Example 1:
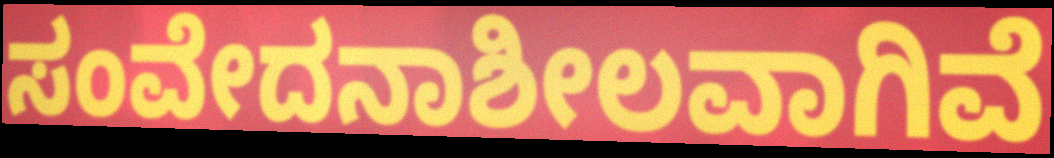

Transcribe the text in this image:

ಸಂವೇದನಾಶೀಲವಾಗಿವೆ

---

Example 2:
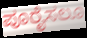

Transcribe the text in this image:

ಪೂರೈಸಲೂ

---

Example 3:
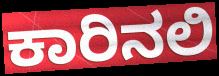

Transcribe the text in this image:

ಕಾರಿನಲಿ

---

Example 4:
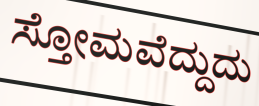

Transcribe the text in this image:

ಸ್ತೋಮವೆದ್ದುದು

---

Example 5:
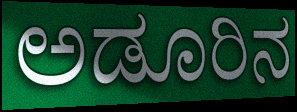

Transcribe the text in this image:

ಅಡೂರಿನ